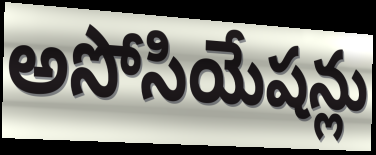
అసోసియేషన్లు